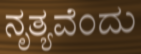
ನೃತ್ಯವೆಂದು